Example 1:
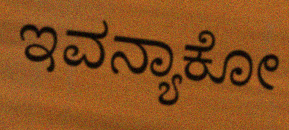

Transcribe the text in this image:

ಇವನ್ಯಾಕೋ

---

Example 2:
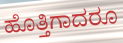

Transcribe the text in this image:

ಹೊತ್ತಿಗಾದರೂ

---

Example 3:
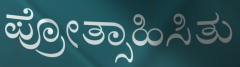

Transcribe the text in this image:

ಪ್ರೋತ್ಸಾಹಿಸಿತು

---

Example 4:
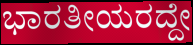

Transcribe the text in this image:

ಭಾರತೀಯರದ್ದೇ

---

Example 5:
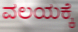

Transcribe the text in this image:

ವಲಯಕ್ಕೆ